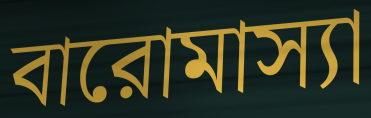
বারোমাস্যা